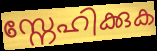
സ്നേഹിക്കുക